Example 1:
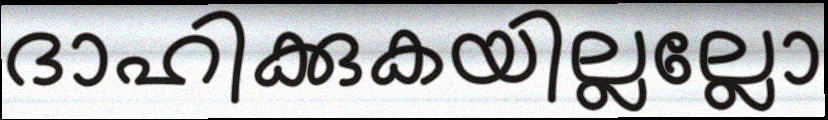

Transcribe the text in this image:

ദാഹിക്കുകയില്ലല്ലോ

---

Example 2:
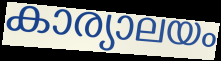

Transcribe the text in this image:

കാര്യാലയം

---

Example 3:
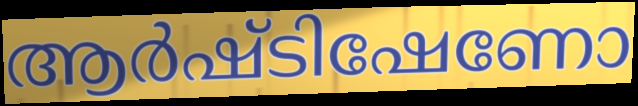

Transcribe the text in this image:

ആർഷ്ടിഷേണോ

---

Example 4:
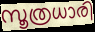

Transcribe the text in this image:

സൂത്രധാരി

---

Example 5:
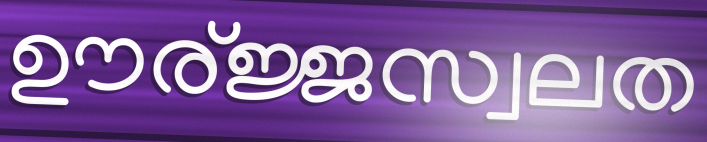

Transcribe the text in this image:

ഊര്ജ്ജസ്വലത